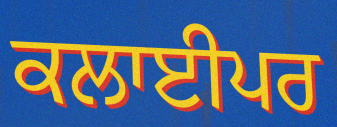
ਕਲਾਈਪਰ